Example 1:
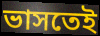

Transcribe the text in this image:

ভাসতেই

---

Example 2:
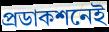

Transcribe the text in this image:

প্রডাকশনেই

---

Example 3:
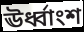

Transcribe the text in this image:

ঊর্ধ্বাংশ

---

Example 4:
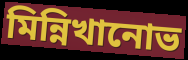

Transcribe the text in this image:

মিন্নিখানোভ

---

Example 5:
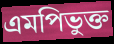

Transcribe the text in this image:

এমপিভুক্ত